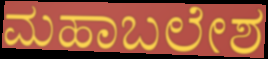
ಮಹಾಬಲೇಶ